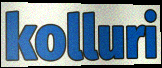
kolluri